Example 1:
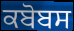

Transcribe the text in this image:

ਕਬੋਬਸ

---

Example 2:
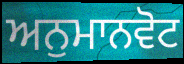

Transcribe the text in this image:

ਅਨੁਮਾਨਵੋਟ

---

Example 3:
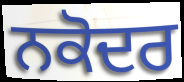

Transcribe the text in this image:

ਨਕੋਦਰ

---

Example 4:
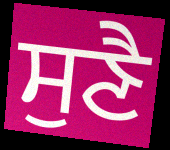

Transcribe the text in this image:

ਸੁਣੈ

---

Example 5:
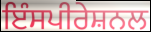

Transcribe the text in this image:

ਇੰਸਪੀਰੇਸ਼ਨਲ